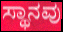
ಸ್ಥಾನವು